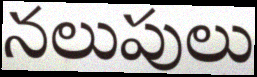
నలుపులు